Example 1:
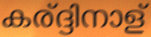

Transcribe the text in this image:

കര്ദ്ദിനാള്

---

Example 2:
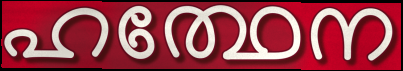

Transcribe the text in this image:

ഹത്ഥേന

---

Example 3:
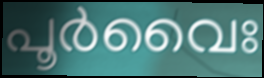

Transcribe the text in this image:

പൂർവൈഃ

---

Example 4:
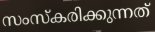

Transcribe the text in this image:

സംസ്കരിക്കുന്നത്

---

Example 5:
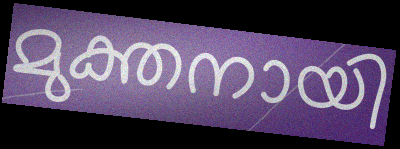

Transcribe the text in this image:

മുക്തനായി